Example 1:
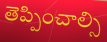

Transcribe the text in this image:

తెప్పించాల్సి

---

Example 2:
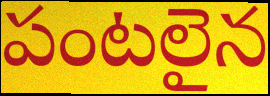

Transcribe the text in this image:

పంటలైన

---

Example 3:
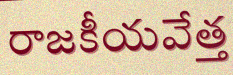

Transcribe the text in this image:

రాజకీయవేత్త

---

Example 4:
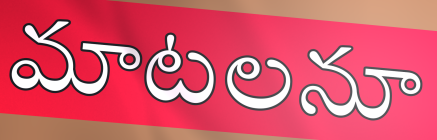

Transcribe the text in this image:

మాటలనూ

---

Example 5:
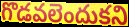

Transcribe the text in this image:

గొడవలెందుకని